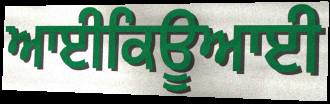
ਆਈਕਿਊਆਈ